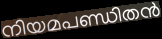
നിയമപണ്ഡിതൻ